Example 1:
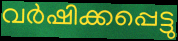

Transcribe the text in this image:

വർഷിക്കപ്പെട്ടു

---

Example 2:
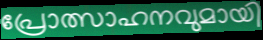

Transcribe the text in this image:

പ്രോത്സാഹനവുമായി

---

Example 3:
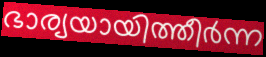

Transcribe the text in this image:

ഭാര്യയായിത്തീർന്ന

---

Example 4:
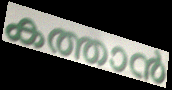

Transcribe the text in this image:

കത്താൻ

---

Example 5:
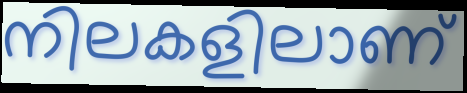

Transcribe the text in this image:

നിലകളിലാണ്